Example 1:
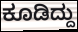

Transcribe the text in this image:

ಕೂಡಿದ್ದು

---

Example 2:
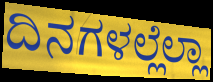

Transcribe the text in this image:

ದಿನಗಳಲ್ಲೆಲ್ಲಾ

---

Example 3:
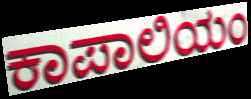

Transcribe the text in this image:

ಕಾಪಾಲಿಯಂ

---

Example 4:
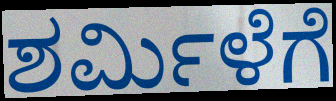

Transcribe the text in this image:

ಶರ್ಮಿಳೆಗೆ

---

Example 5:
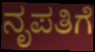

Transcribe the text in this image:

ನೃಪತಿಗೆ